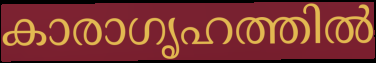
കാരാഗൃഹത്തിൽ